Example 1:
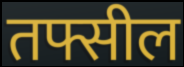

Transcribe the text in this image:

तफ्सील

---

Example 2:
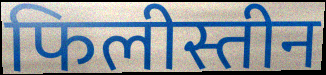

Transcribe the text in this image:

फिलीस्तीन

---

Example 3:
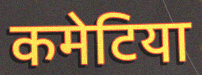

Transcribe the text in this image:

कमेटिया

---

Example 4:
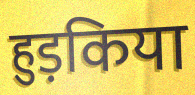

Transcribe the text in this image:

हुड़किया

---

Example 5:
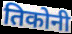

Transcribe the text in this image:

तिकोनी